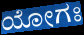
ಯೋಗಃ